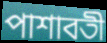
পাশাবতী